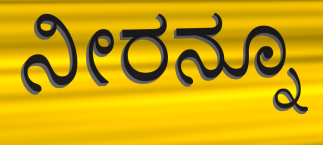
ನೀರನ್ನೂ